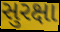
સુરક્ષા